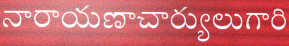
నారాయణాచార్యులుగారి